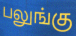
பலுங்கு